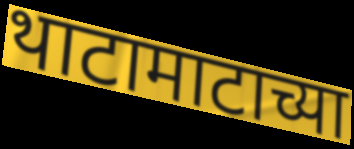
थाटामाटाच्या